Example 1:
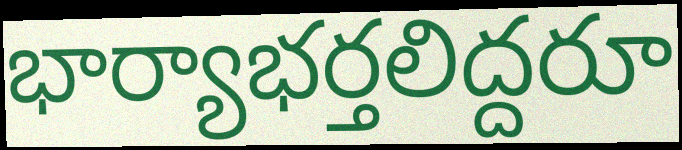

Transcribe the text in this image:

భార్యాభర్తలిద్దరూ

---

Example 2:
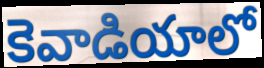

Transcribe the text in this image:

కెవాడియాలో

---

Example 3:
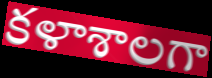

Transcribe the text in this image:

కళాశాలగా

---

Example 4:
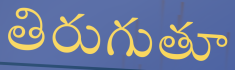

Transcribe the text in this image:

తిరుగుతూ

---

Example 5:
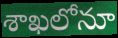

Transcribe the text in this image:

శాఖలోనూ